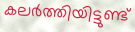
കലർത്തിയിട്ടുണ്ട്